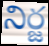
నిర్జ